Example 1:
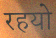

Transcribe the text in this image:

रहयो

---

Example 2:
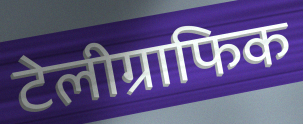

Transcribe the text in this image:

टेलीग्राफिक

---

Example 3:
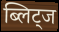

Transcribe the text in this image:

ब्लिट्ज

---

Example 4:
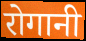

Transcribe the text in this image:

रोगानी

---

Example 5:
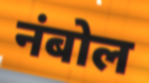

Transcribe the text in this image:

नंबोल